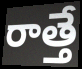
రాత్తే